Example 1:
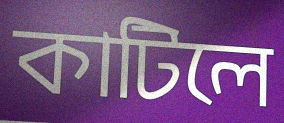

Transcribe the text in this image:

কাটিলে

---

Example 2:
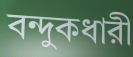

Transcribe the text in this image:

বন্দুকধারী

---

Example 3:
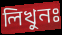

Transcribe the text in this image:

লিখুনঃ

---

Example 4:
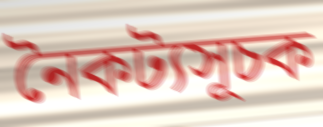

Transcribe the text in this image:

নৈকট্যসূচক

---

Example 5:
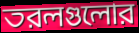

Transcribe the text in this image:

তরলগুলোর